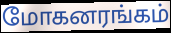
மோகனரங்கம்